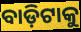
ବାଡ଼ିଟାକୁ